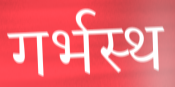
गर्भस्थ